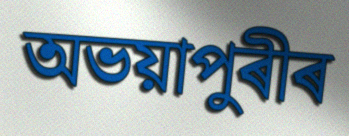
অভয়াপুৰীৰ